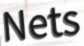
Nets